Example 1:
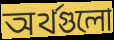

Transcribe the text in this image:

অর্থগুলো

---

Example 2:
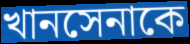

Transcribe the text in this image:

খানসেনাকে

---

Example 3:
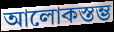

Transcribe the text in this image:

আলোকস্তম্ভ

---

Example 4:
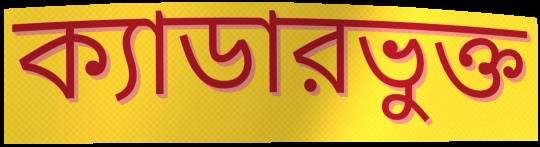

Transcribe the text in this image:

ক্যাডারভুক্ত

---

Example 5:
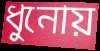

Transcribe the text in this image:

ধুনোয়